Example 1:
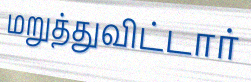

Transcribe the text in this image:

மறுத்துவிட்டார்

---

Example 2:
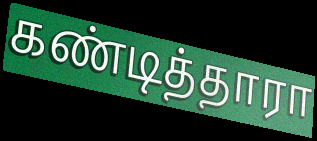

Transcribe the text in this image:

கண்டித்தாரா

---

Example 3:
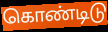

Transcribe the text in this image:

கொண்டிடு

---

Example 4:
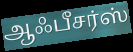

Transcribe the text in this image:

ஆஃபீசர்ஸ்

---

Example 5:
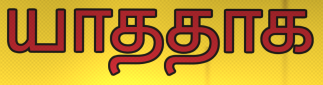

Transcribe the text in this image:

யாததாக